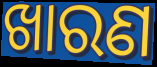
ଖାରଣ